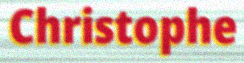
Christophe